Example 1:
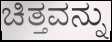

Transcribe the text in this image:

ಚಿತ್ತವನ್ನು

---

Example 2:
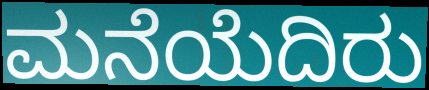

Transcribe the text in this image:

ಮನೆಯೆದಿರು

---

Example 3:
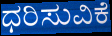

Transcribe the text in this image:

ಧರಿಸುವಿಕೆ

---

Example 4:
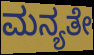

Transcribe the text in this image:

ಮನ್ಯತೇ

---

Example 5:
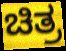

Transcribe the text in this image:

ಚಿತ್ರ